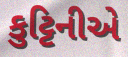
કુટ્ટિનીએ